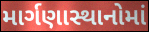
માર્ગણાસ્થાનોમાં